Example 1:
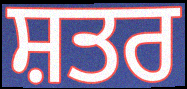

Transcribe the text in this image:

ਸ਼ਤਰ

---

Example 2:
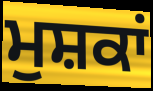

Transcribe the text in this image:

ਮੁਸ਼ਕਾਂ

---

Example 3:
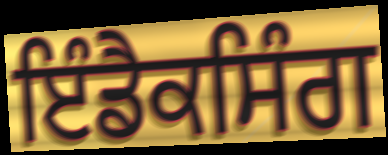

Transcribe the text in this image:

ਇੰਡੈਕਸਿੰਗ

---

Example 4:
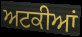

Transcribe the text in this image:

ਅਟਕੀਆਂ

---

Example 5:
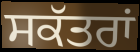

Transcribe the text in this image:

ਸਕੱਤਰਾਂ